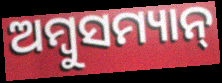
ଅମ୍ବୁସମ୍ୟାନ୍